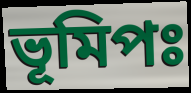
ভূমিপঃ